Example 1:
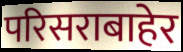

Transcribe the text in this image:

परिसराबाहेर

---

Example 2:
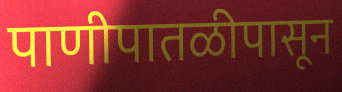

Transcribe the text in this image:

पाणीपातळीपासून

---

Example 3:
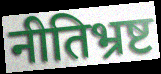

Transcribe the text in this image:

नीतिभ्रष्ट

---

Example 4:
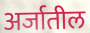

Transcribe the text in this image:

अर्जातील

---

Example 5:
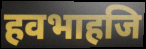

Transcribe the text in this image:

हवभाहजि